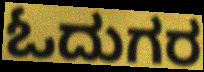
ಓದುಗರ